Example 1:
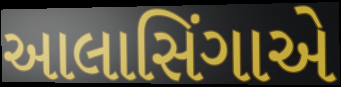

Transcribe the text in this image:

આલાસિંગાએ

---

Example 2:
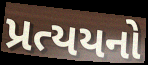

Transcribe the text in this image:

પ્રત્યયનો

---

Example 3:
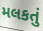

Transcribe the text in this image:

મલકતું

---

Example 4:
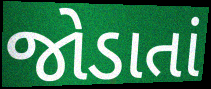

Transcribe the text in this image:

જોડાતાં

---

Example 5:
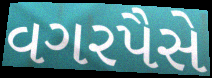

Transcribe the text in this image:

વગરપૈસે